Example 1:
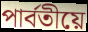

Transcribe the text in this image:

পাৰ্বতীয়ে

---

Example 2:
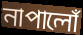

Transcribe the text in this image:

নাপালোঁ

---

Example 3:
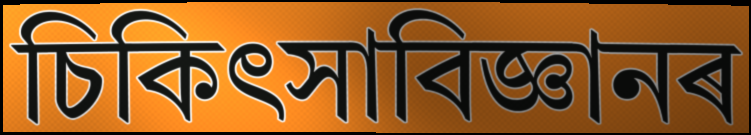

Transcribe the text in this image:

চিকিৎসাবিজ্ঞানৰ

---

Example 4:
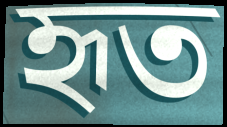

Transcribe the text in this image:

হৃত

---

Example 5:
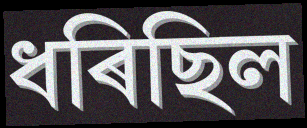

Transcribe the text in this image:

ধৰিছিল